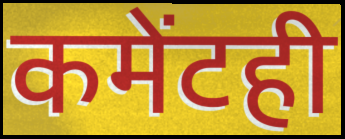
कमेंटही